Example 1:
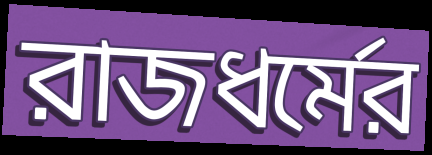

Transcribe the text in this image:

রাজধর্মের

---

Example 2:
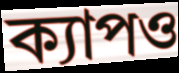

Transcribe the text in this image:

ক্যাপও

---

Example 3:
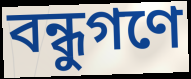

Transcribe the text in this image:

বন্ধুগণে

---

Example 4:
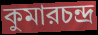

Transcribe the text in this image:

কুমারচন্দ্র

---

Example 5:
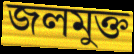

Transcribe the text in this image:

জলমুক্ত